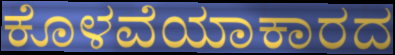
ಕೊಳವೆಯಾಕಾರದ